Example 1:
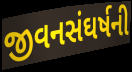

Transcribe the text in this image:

જીવનસંઘર્ષની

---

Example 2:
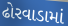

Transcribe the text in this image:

ઢોરવાડામાં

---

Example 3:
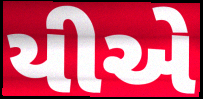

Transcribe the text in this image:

યીએ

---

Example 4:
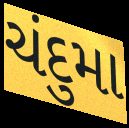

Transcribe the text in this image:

ચંદુમા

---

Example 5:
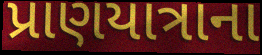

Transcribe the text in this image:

પ્રાણયાત્રાના